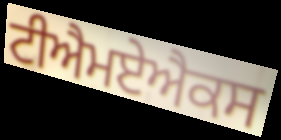
ਟੀਐਮਏਐਕਸ